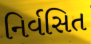
નિર્વસિત